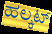
ಹಲ್ಕಟ್